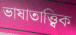
ভাষাতাত্ত্বিক